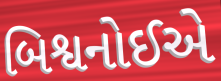
બિશ્વનોઈએ